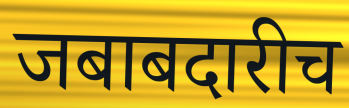
जबाबदारीच